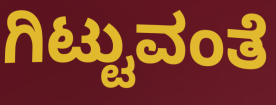
ಗಿಟ್ಟುವಂತೆ